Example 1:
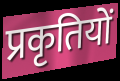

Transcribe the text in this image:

प्रकृतियों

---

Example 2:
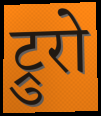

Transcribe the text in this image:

ट्रुरो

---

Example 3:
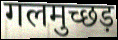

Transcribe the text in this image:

गलमुच्छड़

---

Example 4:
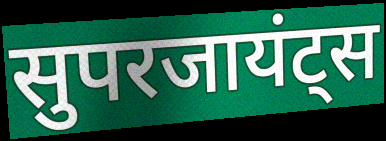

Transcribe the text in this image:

सुपरजायंट्स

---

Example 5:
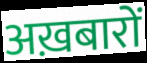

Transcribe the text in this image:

अख़बारों